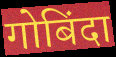
गोबिंदा